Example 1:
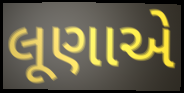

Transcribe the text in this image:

લૂણાએ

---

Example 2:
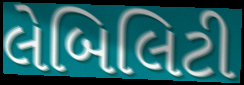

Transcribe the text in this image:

લેબિલિટી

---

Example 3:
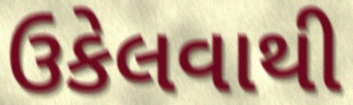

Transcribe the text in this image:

ઉકેલવાથી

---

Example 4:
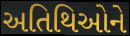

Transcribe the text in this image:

અતિથિઓને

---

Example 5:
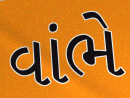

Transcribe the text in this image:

વાંભે